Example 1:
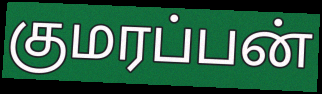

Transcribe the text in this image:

குமரப்பன்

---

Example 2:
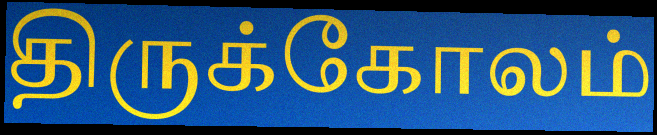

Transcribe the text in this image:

திருக்கோலம்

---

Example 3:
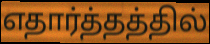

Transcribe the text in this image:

எதார்த்தத்தில்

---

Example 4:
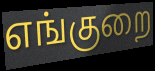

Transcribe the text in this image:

எங்குறை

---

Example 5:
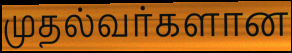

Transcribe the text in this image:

முதல்வர்களான